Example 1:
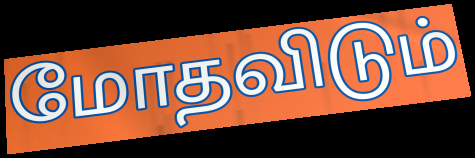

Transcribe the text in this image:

மோதவிடும்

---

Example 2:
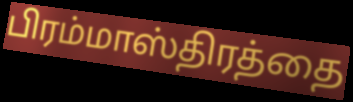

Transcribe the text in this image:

பிரம்மாஸ்திரத்தை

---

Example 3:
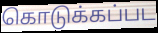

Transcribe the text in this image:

கொடுக்கப்பட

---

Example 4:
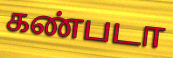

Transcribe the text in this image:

கண்படா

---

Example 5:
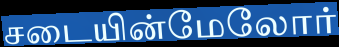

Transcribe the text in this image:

சடையின்மேலோர்